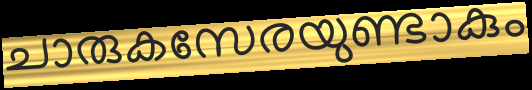
ചാരുകസേരയുണ്ടാകും